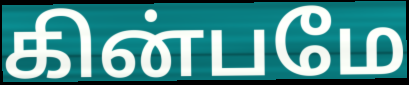
கின்பமே